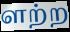
ளற்ற